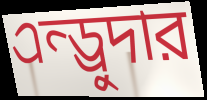
এন্ড্রুদার